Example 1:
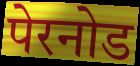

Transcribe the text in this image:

पेरनोड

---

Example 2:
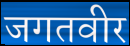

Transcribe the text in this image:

जगतवीर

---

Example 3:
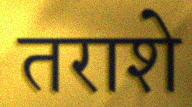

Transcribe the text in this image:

तराशे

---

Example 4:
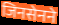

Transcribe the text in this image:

जिनसेनने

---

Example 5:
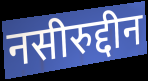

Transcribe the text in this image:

नसीरुद्दीन